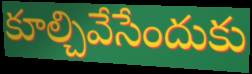
కూల్చివేసేందుకు